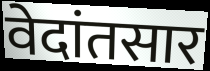
वेदांतसार